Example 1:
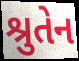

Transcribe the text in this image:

શ્રુતેન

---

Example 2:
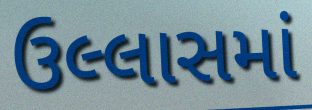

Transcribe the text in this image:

ઉલ્લાસમાં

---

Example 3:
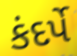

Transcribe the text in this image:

કંદર્પે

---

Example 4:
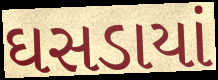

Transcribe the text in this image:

ઘસડાયાં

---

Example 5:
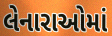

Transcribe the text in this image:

લેનારાઓમાં